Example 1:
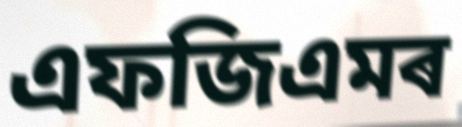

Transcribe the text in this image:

এফজিএমৰ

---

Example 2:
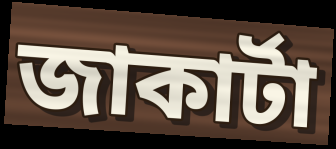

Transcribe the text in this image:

জাকাৰ্টা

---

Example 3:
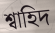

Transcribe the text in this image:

শ্বাহিদ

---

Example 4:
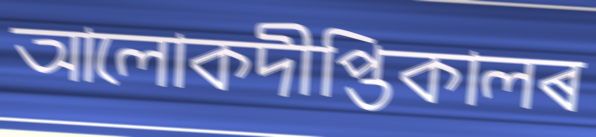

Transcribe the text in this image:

আলোকদীপ্তিকালৰ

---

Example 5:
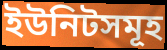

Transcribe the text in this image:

ইউনিটসমূহ